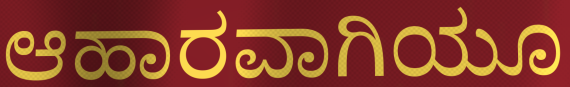
ಆಹಾರವಾಗಿಯೂ